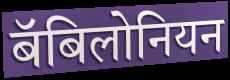
बॅबिलोनियन